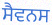
ਸੈਵਨਸ